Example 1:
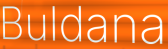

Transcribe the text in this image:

Buldana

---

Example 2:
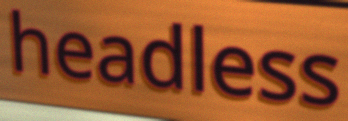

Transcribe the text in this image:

headless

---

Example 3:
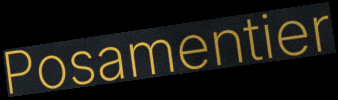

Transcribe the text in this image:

Posamentier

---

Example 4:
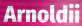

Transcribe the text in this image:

Arnoldii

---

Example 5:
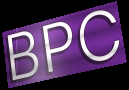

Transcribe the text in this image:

BPC